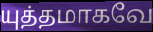
யுத்தமாகவே